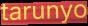
tarunyo